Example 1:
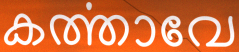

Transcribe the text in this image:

കൎത്താവേ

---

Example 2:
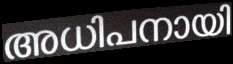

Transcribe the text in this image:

അധിപനായി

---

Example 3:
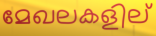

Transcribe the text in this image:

മേഖലകളില്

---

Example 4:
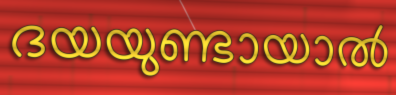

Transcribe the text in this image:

ദയയുണ്ടായാൽ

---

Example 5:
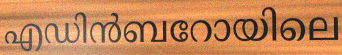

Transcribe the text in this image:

എഡിൻബറോയിലെ